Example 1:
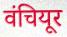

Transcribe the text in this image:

वंचियूर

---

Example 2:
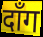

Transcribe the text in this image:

दाँग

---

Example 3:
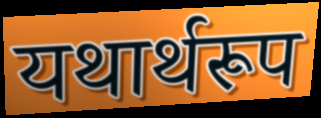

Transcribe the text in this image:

यथार्थरूप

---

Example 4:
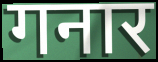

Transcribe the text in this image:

गनार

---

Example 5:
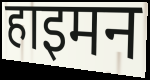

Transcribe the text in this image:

हाइमन